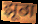
झूठा